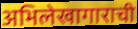
अभिलेखागाराची